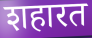
शहारत